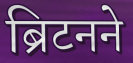
ब्रिटनने